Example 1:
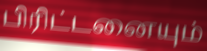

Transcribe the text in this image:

பிரிட்டனையும்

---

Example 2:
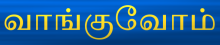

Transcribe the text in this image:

வாங்குவோம்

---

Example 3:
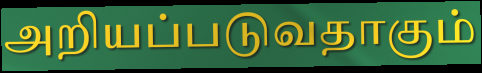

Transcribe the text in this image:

அறியப்படுவதாகும்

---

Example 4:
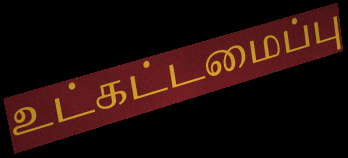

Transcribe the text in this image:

உட்கட்டமைப்பு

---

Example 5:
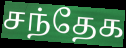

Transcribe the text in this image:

சந்தேக